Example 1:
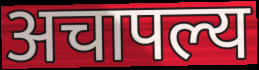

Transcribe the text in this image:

अचापल्य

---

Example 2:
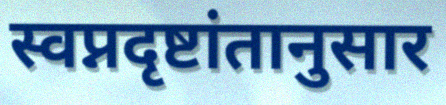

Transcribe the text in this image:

स्वप्नदृष्टांतानुसार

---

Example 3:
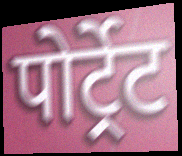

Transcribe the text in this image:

पोर्ट्रेट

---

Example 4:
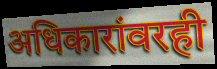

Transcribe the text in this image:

अधिकारांवरही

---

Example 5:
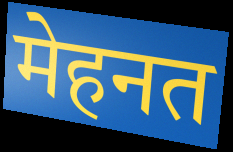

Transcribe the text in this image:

मेहनत